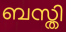
ബസ്തി